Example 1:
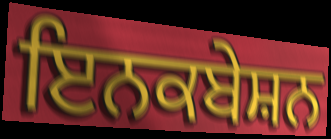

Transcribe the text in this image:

ਇਨਕਬੇਸ਼ਨ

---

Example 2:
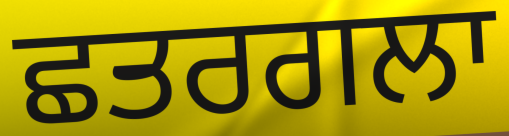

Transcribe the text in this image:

ਛਤਰਗਲਾ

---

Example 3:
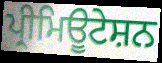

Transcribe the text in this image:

ਪ੍ਰੀਮਿਊਟੇਸ਼ਨ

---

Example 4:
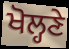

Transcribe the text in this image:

ਖੋਲ੍ਹਣੇ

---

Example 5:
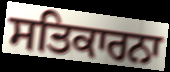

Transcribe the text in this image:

ਸਤਿਕਾਰਨਾ